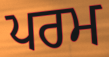
ਪਰਮ